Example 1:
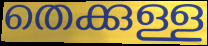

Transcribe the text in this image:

തെക്കുള്ള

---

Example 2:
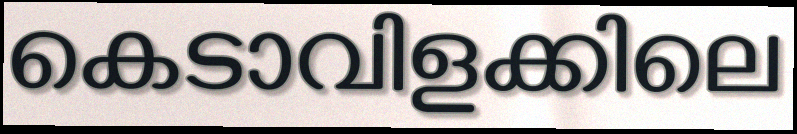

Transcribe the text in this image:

കെടാവിളക്കിലെ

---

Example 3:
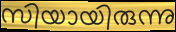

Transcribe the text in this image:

സിയായിരുന്നു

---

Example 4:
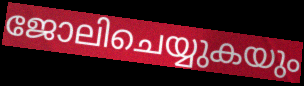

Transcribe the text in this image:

ജോലിചെയ്യുകയും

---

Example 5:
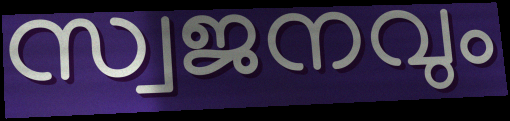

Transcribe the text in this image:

സ്വജനവും